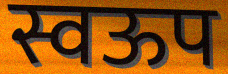
स्वऊप